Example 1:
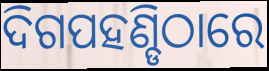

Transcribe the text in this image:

ଦିଗପହଣ୍ଡିଠାରେ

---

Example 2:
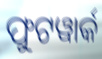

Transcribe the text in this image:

ଫୁଟୱାର୍କ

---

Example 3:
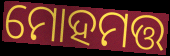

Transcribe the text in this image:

ମୋହମତ୍ତ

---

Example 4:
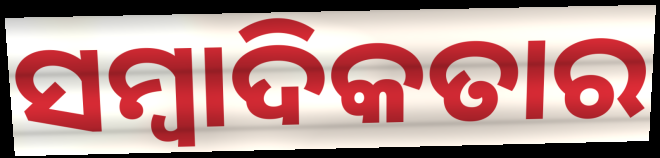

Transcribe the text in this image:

ସମ୍ୱାଦିକତାର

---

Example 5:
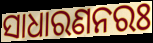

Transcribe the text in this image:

ସାଧାରଣନରଃ